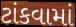
ટાંકવામાં